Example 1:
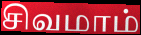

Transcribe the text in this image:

சிவமாம்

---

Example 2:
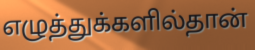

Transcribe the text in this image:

எழுத்துக்களில்தான்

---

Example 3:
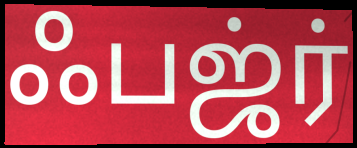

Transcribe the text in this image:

ஃபஜ்ர்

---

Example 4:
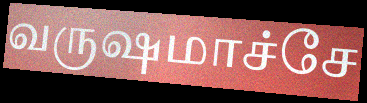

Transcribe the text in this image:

வருஷமாச்சே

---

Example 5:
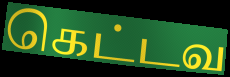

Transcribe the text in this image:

கெட்டவ